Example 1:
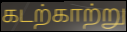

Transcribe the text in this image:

கடற்காற்று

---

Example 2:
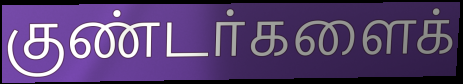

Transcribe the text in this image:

குண்டர்களைக்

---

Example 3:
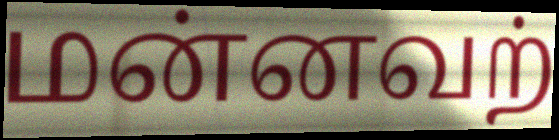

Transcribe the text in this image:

மன்னவற்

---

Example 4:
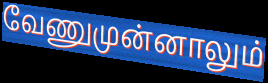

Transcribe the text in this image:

வேணுமுன்னாலும்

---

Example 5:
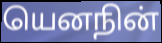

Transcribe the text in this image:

யெனநின்